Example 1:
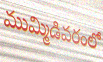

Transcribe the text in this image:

ముమ్మిడివరంలో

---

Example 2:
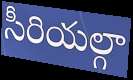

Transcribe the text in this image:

సీరియల్గా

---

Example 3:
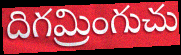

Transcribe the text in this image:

దిగమ్రింగుచు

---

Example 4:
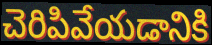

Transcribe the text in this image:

చెరిపివేయడానికి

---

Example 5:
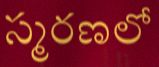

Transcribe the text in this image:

స్మరణలో